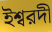
ইশ্বরদী